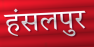
हंसलपुर